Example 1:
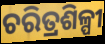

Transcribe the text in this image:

ଚରିତ୍ରଶିଳ୍ପୀ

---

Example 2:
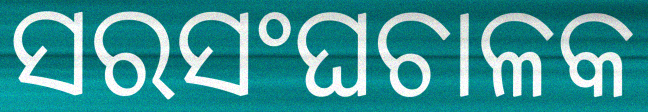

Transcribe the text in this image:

ସରସଂଘଚାଳକ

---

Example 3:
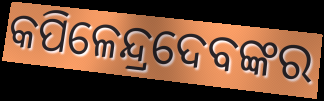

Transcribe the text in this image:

କପିଳେନ୍ଦ୍ରଦେବଙ୍କର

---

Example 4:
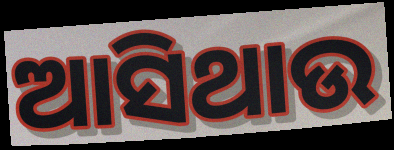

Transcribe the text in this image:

ଆସିଥାଉ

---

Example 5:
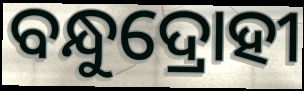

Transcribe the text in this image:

ବନ୍ଧୁଦ୍ରୋହୀ